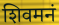
शिवमनं